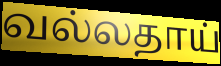
வல்லதாய்